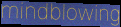
mindblowing